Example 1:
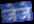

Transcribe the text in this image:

जेजे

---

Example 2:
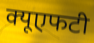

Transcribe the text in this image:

क्यूएफटी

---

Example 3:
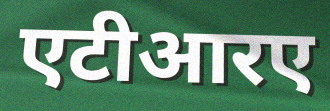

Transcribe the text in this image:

एटीआरए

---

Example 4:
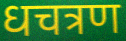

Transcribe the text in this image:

धचत्रण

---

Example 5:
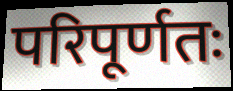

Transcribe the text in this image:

परिपूर्णतः